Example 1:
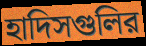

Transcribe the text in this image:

হাদিসগুলির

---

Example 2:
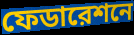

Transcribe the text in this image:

ফেডারেশনে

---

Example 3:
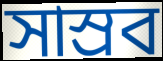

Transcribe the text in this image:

সাস্রব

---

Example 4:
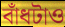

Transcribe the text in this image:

বাঁধটাও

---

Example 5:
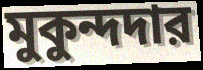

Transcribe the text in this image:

মুকুন্দদার